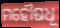
ମହୌଷଧୂ